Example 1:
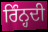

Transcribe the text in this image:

ਰਿੰਨ੍ਹਦੀ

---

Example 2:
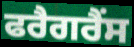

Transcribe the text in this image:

ਫਰੈਗਰੈਂਸ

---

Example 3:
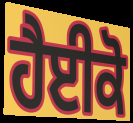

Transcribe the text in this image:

ਹੈਈਕੋ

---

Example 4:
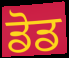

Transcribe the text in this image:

ਡੋਡ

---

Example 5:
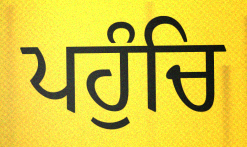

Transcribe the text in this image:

ਪਹੁੰਚਿ